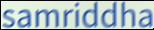
samriddha